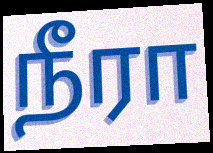
நீரா